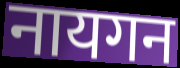
नायगन